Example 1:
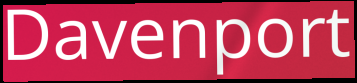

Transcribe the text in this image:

Davenport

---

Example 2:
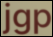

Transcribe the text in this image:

jgp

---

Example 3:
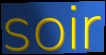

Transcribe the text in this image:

soir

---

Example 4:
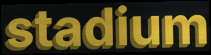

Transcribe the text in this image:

stadium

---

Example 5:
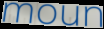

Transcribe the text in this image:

moun